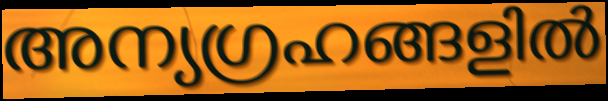
അന്യഗ്രഹങ്ങളിൽ